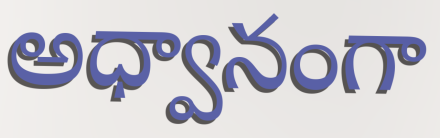
అధ్వానంగా